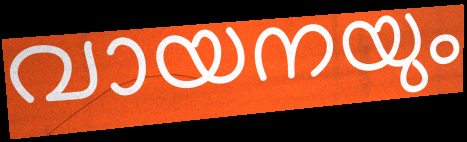
വായനയും